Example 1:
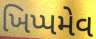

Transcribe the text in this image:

ખિપ્પમેવ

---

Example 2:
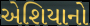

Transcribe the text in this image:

એશિયાનો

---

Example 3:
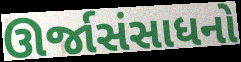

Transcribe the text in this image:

ઊર્જાસંસાધનો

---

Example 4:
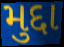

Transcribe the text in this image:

મુદ્દા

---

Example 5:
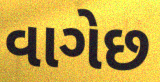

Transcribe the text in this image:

વાગેછ